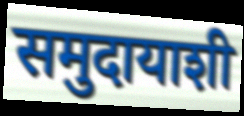
समुदायाशी